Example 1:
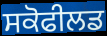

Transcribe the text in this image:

ਸਕੋਫੀਲਡ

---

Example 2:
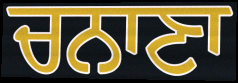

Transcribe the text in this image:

ਚਨਾਣਾ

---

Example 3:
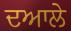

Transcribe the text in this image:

ਦਆਲੇ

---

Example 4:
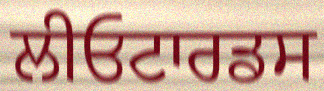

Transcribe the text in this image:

ਲੀਓਟਾਰਡਸ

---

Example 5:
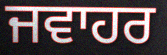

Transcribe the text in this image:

ਜਵਾਹਰ